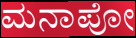
ಮನಾಪೋ